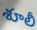
శూలీ